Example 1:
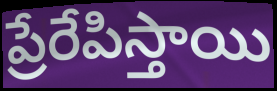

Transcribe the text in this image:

ప్రేరేపిస్తాయి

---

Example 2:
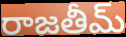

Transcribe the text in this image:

రాజతీమ్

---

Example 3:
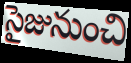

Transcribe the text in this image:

సైజునుంచి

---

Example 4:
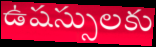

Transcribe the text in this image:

ఉషస్సులకు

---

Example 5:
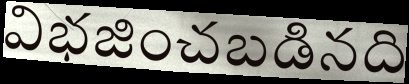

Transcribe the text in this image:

విభజించబడినది